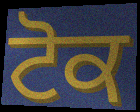
ਟੋਕ